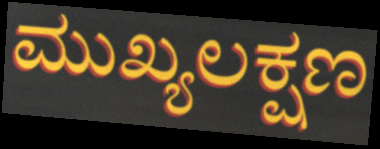
ಮುಖ್ಯಲಕ್ಷಣ